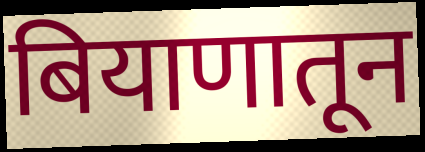
बियाणातून